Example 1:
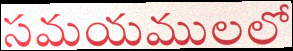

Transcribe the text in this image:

సమయములలో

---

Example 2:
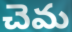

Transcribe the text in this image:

చెమ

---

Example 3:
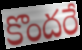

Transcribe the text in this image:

కొందరే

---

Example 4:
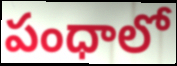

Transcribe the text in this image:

పంధాలో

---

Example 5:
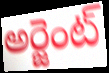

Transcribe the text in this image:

అర్జెంట్